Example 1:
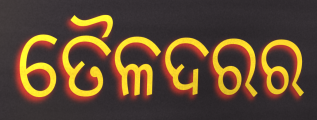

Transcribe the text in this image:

ତୈଳଦରର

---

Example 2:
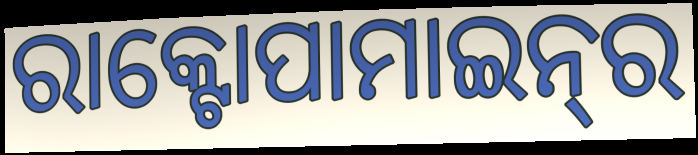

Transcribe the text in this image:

ରାକ୍ଟୋପାମାଇନ୍‌ର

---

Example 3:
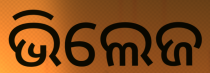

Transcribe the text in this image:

ଭିଲେଜ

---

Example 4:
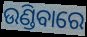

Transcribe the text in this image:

ଉଣ୍ଡିବାରେ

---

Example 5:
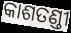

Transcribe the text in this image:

କାଶତଣ୍ଡୀ